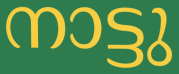
നാട്ടു